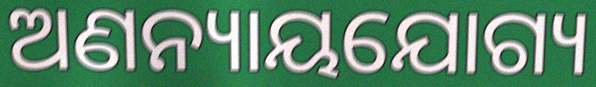
ଅଣନ୍ୟାୟଯୋଗ୍ୟ